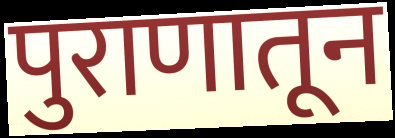
पुराणातून